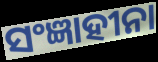
ସଂଜ୍ଞାହୀନା